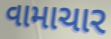
વામાચાર